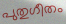
പുതുഗീതം